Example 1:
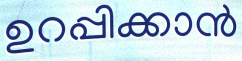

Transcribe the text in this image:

ഉറപ്പിക്കാൻ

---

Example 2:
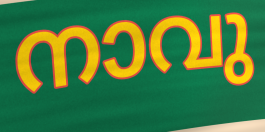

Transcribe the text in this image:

നാവു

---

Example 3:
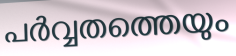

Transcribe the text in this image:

പർവ്വതത്തെയും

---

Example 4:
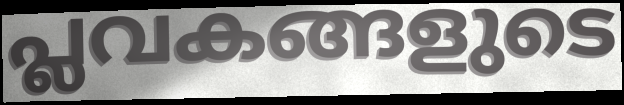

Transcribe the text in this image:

പ്ലവകങ്ങളുടെ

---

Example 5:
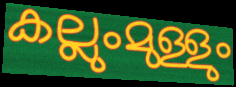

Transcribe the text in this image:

കല്ലുംമുള്ളും